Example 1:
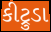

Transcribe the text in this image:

કીટ્રુડા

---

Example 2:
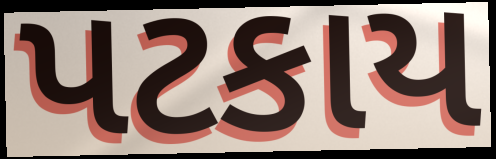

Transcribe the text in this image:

પટકાય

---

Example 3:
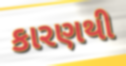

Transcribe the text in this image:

કારણથી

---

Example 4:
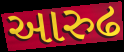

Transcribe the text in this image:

આરુઢ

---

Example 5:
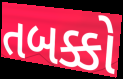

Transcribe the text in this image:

તબક્કો